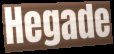
Hegade